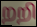
றறி